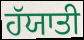
ਹੱਯਾਤੀ